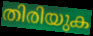
തിരിയുക